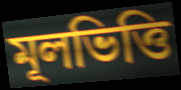
মূলভিত্তি